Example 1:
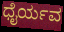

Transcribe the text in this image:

ಧೈರ್ಯವ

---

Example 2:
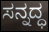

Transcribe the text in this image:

ಸನ್ನದ್ಧ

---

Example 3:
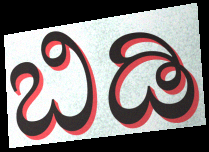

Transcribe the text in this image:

ಬಿಡಿ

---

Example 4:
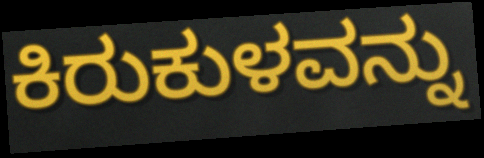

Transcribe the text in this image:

ಕಿರುಕುಳವನ್ನು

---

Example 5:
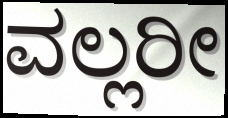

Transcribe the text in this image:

ವಲ್ಲರೀ